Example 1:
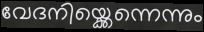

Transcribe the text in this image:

വേദനിയ്ക്കെന്നെന്നും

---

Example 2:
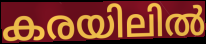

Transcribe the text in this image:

കരയിലിൽ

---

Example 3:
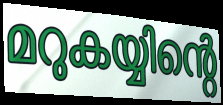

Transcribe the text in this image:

മറുകയ്യിന്റെ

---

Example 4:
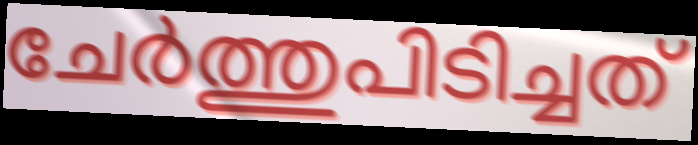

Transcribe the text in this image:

ചേർത്തുപിടിച്ചത്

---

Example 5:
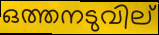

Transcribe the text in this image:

ഒത്തനടുവില്